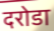
दरोडा